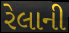
રેલાની